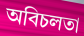
অবিচলতা